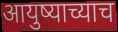
आयुष्याच्याच